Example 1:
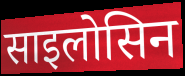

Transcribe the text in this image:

साइलोसिन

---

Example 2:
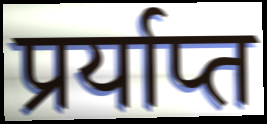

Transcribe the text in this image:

प्रर्याप्त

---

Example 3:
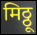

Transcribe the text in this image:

मिठ्ठू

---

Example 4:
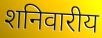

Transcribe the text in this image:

शनिवारीय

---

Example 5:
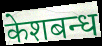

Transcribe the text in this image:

केशबन्ध